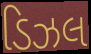
ડિઝલ